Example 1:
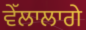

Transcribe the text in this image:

ਵੇੱਲਾਲਾਗੇ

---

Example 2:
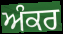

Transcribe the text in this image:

ਅੰਕਰ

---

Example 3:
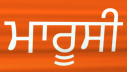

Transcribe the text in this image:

ਮਾਰੂਸੀ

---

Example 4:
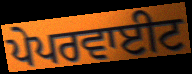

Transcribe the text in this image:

ਪੇਪਰਵਾਈਟ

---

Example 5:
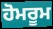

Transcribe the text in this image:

ਹੋਮਰੂਮ